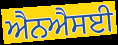
ਐਨਐਸਈ